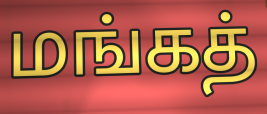
மங்கத்